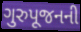
ગુરુપૂજનની